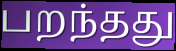
பறந்தது